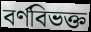
বর্ণবিভক্ত